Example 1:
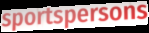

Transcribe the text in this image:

sportspersons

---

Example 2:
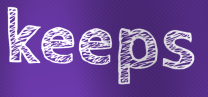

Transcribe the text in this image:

keeps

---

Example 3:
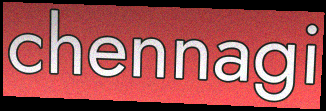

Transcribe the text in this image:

chennagi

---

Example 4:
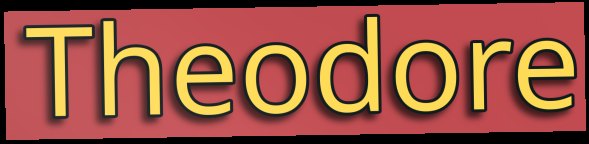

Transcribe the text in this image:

Theodore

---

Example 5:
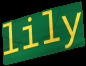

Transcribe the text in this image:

lily